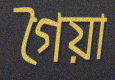
গৈয়া